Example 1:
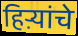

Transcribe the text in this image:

हिऱ्‍यांचे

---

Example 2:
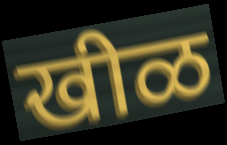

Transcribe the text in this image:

खीळ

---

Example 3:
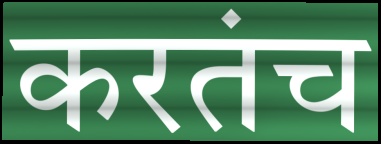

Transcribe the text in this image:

करतंच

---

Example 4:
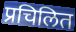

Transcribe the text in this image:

प्रचिलित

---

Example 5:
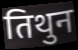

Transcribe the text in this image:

तिथुन